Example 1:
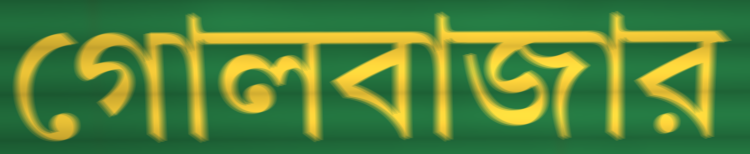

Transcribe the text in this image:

গোলবাজার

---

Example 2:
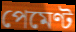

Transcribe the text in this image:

পেমেণ্ট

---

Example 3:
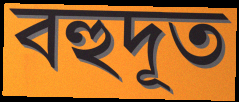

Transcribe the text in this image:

বহুদূত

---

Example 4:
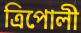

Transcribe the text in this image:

ত্রিপোলী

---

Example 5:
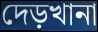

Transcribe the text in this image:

দেড়খানা